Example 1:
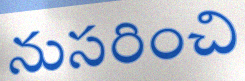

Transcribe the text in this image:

నుసరించి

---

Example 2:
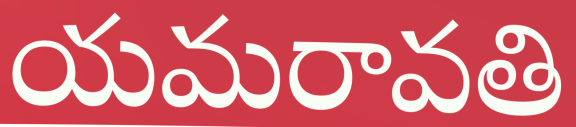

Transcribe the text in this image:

యమరావతి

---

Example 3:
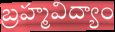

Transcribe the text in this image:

బ్రహ్మవిద్యాం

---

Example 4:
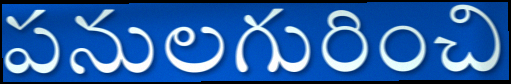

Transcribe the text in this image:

పనులగురించి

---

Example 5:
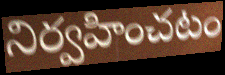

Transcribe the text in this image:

నిర్వహించటం